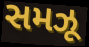
સમઝૂ